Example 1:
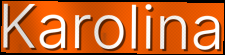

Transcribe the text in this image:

Karolina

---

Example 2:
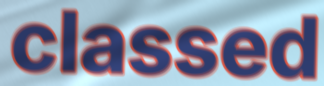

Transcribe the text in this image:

classed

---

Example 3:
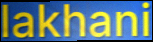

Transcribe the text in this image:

lakhani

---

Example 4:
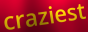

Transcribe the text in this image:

craziest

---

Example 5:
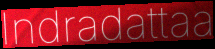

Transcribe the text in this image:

Indradattaa